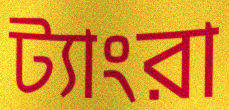
ট্যাংরা